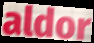
aldor